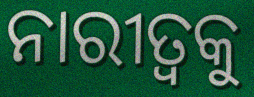
ନାରୀତ୍ୱକୁ